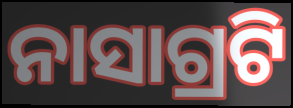
ନାସାଗ୍ରଟି